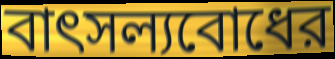
বাৎসল্যবোধের